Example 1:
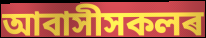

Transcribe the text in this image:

আবাসীসকলৰ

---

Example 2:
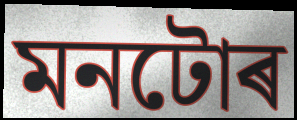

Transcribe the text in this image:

মনটোৰ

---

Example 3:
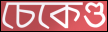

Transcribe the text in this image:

চেকেণ্ড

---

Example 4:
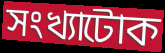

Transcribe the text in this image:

সংখ্যাটোক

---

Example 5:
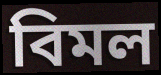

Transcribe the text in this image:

বিমল